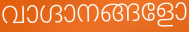
വാഗ്ദാനങ്ങളോ